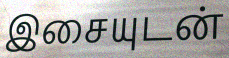
இசையுடன்